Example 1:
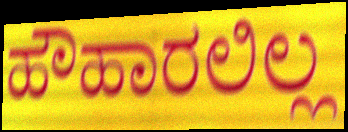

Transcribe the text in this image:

ಹೌಹಾರಲಿಲ್ಲ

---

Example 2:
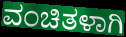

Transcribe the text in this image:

ವಂಚಿತಳಾಗಿ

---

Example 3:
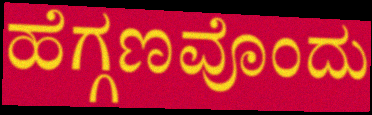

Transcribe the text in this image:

ಹೆಗ್ಗಣವೊಂದು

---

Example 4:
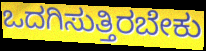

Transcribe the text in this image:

ಒದಗಿಸುತ್ತಿರಬೇಕು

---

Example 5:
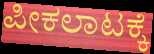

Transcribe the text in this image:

ಪೀಕಲಾಟಕ್ಕೆ